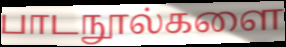
பாடநூல்களை